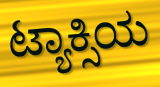
ಟ್ಯಾಕ್ಸಿಯ